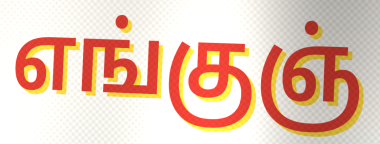
எங்குஞ்